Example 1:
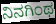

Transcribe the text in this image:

ನಿನಗಿಂಥ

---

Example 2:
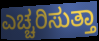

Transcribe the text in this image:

ಎಚ್ಚರಿಸುತ್ತಾ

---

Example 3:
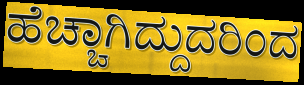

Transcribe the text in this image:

ಹೆಚ್ಚಾಗಿದ್ದುದರಿಂದ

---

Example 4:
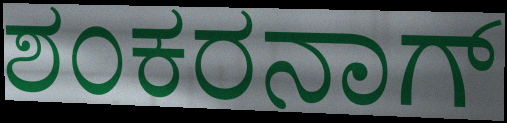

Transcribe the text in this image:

ಶಂಕರನಾಗ್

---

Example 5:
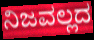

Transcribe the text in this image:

ನಿಜವಲ್ಲದ